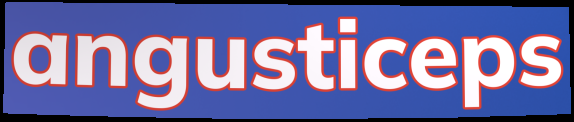
angusticeps